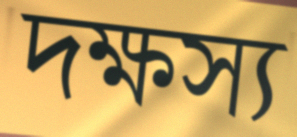
দক্ষস্য